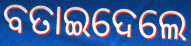
ବତାଇଦେଲେ